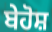
ਬੇਹੋਸ਼